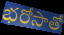
భరోసాతో